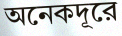
অনেকদূরে